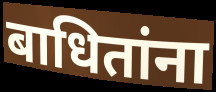
बाधितांना